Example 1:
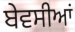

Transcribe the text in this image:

ਬੇਵਸੀਆਂ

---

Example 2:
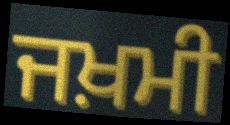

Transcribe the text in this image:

ਜਖ਼ਮੀ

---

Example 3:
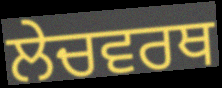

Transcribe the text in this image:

ਲੇਚਵਰਥ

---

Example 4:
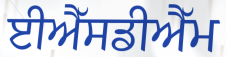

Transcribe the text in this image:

ਈਐੱਸਡੀਐੱਮ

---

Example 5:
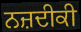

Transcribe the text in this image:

ਨਜ਼ਦੀਕੀ